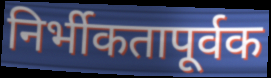
निर्भीकतापूर्वक